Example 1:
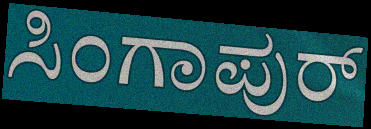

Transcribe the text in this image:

ಸಿಂಗಾಪುರ್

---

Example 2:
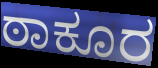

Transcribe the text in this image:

ಠಾಕೂರ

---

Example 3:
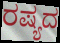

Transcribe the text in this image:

ರಷ್ಯದ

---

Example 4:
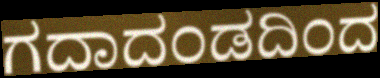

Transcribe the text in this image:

ಗದಾದಂಡದಿಂದ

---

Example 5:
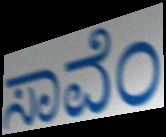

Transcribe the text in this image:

ಸಾವೆಂ